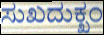
ಸುಖದುಕ್ಖಂ